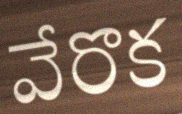
వేరొక